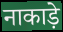
नाकाड़े